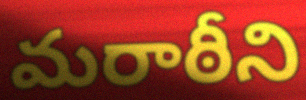
మరాఠీని